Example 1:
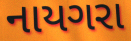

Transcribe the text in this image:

નાયગરા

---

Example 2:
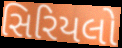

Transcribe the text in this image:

સિરિયલો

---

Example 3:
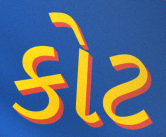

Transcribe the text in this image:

કોટ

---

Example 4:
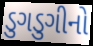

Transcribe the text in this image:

ડુગડુગીનો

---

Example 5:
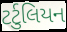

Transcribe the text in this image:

ટર્ટુલિયન